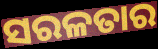
ସରଳତାର